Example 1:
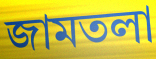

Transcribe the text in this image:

জামতলা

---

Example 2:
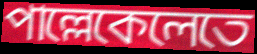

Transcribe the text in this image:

পাল্লেকেলেতে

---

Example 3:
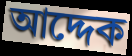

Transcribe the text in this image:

আদ্দেক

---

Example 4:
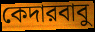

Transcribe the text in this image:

কেদারবাবু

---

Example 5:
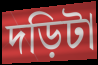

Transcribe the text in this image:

দড়িটা